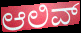
ಆಲಿವ್